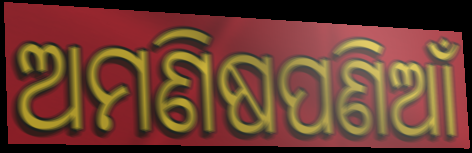
ଅମଣିଷପଣିଆଁ